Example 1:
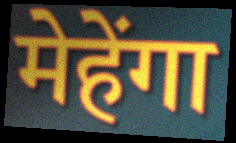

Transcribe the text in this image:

मेहेंगा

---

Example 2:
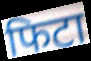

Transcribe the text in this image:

फिटा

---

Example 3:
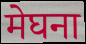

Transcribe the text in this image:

मेघना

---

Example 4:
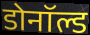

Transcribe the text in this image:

डोनॉल्ड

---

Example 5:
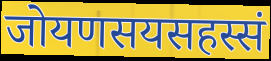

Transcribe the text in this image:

जोयणसयसहस्सं